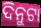
ଦିନୁଟା